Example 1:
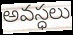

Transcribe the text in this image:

అవస్ధలు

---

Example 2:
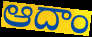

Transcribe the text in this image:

ఆదాం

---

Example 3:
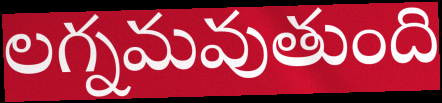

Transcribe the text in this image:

లగ్నమవుతుంది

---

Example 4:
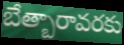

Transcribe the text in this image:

బేత్బారావరకు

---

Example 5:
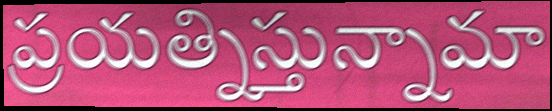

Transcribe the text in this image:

ప్రయత్నిస్తున్నామా